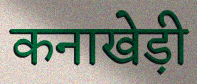
कनाखेड़ी